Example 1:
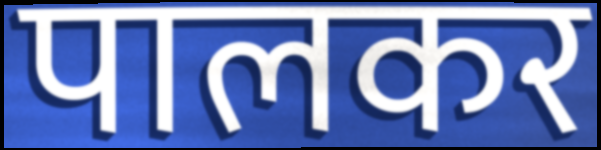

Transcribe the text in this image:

पालकर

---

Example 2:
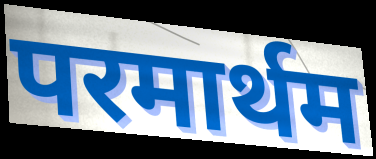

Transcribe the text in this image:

परमार्थम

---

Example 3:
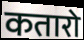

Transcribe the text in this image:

कतारो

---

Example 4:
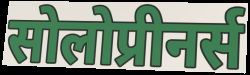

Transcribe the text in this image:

सोलोप्रीनर्स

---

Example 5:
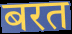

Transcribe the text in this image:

बरत